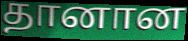
தானான